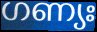
ഗണ്യഃ